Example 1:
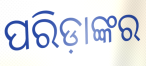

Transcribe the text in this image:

ପରିଡ଼ାଙ୍କର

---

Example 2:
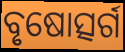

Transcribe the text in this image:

ବୃଷୋତ୍ସର୍ଗ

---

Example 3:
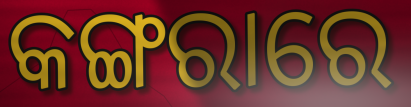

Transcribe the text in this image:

କଙ୍ଗରାରେ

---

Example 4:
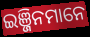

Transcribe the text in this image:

ଇଞ୍ଜିନମାନେ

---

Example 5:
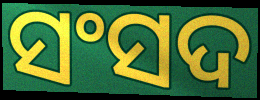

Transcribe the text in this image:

ସଂସଦ